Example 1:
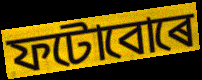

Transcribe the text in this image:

ফটোবোৰে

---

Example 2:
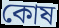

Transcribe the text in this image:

কোষ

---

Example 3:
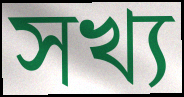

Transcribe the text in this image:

সখ্য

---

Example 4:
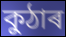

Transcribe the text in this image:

কুঠাৰ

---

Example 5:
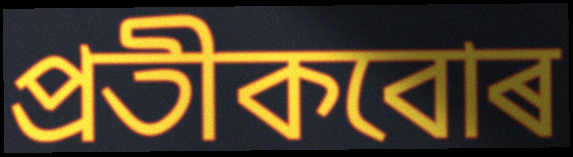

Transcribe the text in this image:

প্ৰতীকবোৰ